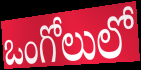
ఒంగోలులో